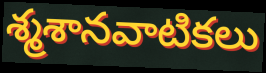
శ్మశానవాటికలు